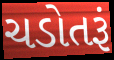
ચડોતરૂં